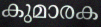
കുമാരക